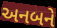
અનબને